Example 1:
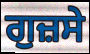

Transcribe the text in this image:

ਗੁਜ਼ਸੇ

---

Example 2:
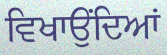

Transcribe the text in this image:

ਵਿਖਾਉਂਦਿਆਂ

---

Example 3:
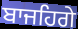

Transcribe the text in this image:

ਬਾਜਹਿਗੇ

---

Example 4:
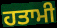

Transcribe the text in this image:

ਹਤਾਮੀ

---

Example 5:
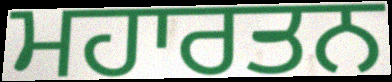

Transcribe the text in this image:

ਮਹਾਰਤਨ